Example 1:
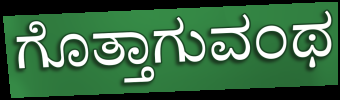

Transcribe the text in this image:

ಗೊತ್ತಾಗುವಂಥ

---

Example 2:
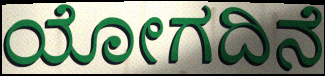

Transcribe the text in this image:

ಯೋಗದಿನೆ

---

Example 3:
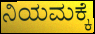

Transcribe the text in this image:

ನಿಯಮಕ್ಕೆ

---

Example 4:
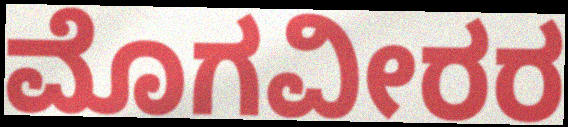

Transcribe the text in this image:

ಮೊಗವೀರರ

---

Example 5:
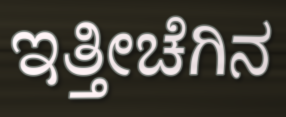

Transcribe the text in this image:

ಇತ್ತೀಚೆಗಿನ